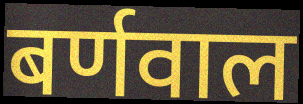
बर्णवाल